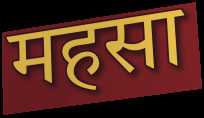
महसा